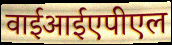
वाईआईएपीएल